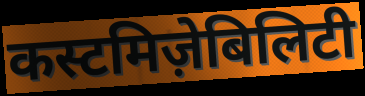
कस्टमिज़ेबिलिटी